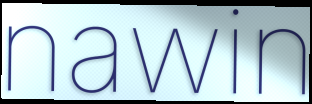
nawin